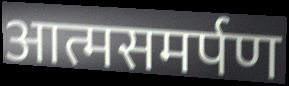
आत्‍मसमर्पण